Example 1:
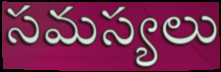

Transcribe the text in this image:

సమస్యలు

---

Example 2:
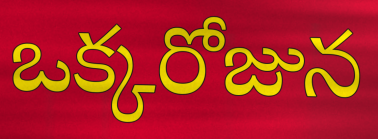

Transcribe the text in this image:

ఒక్కరోజున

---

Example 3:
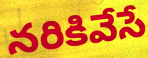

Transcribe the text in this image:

నరికివేసే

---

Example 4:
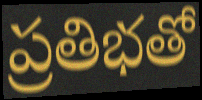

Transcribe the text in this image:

ప్రతిభతో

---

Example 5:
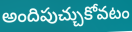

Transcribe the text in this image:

అందిపుచ్చుకోవటం